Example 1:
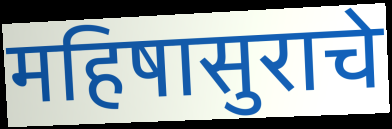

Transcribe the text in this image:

महिषासुराचे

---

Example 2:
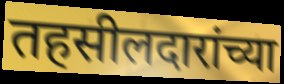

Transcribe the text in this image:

तहसीलदारांच्या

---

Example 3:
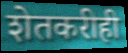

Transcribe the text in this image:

शेतकरीही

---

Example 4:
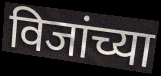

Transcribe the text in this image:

विजांच्या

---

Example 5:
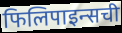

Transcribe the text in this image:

फिलिपाइन्सची